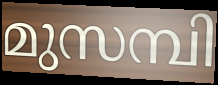
മുസമ്പി